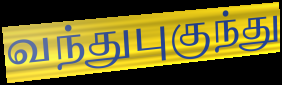
வந்துபுகுந்து